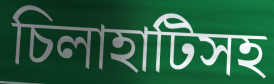
চিলাহাটিসহ